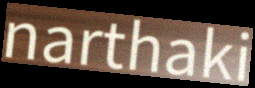
narthaki